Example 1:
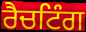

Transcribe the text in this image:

ਰੈਚਟਿੰਗ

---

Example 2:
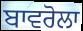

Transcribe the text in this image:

ਬਾਵਰੋਲਾ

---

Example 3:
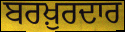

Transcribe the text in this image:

ਬਰਖ਼ੁਰਦਾਰ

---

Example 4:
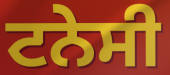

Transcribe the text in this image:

ਟਨੇਸੀ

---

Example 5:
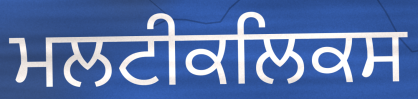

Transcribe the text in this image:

ਮਲਟੀਕਲਿਕਸ